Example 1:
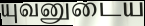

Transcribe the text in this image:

யுவனுடைய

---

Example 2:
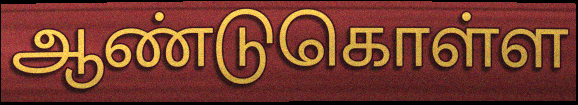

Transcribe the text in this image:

ஆண்டுகொள்ள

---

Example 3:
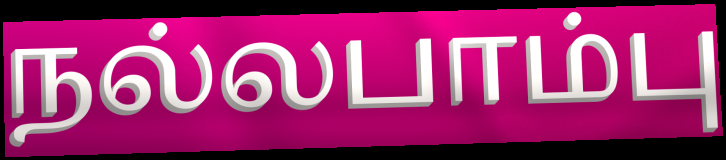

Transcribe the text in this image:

நல்லபாம்பு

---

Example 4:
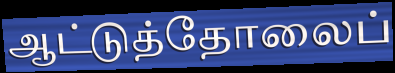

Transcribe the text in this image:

ஆட்டுத்தோலைப்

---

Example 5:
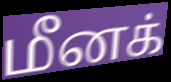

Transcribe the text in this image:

மீனக்